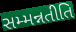
સમ્મન્નતીતિ